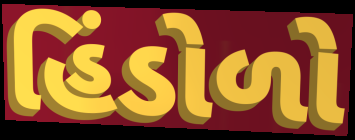
હિંડોળો